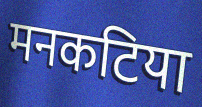
मनकटिया